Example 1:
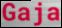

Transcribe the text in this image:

Gaja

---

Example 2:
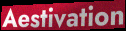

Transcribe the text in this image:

Aestivation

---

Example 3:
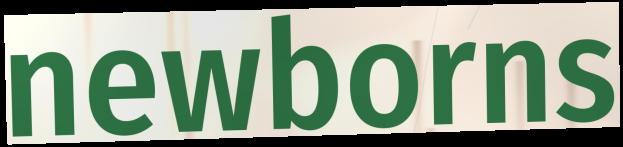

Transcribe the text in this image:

newborns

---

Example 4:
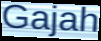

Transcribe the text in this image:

Gajah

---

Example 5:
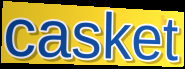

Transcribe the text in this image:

casket